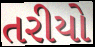
તરીયો